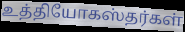
உத்தியோகஸ்தர்கள்